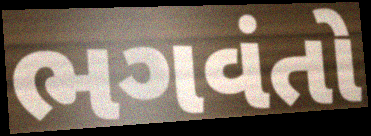
ભગવંતો